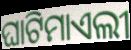
ଘାଟିମାଏଲୀ